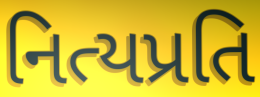
નિત્યપ્રતિ